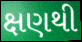
ક્ષણથી